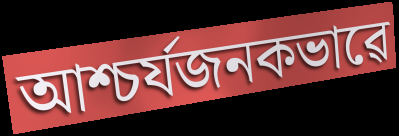
আশ্চৰ্যজনকভাৱে